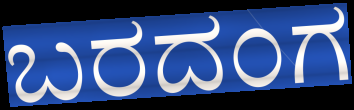
ಬರದಂಗ